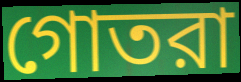
গোতরা